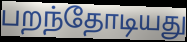
பறந்தோடியது